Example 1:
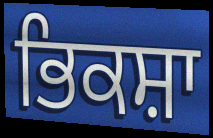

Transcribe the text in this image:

ਭਿਕਸ਼ਾ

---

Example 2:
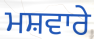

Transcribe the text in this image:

ਮਸ਼ਵਾਰੇ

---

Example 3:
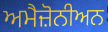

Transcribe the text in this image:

ਅਮੈਜ਼ੋਨੀਅਨ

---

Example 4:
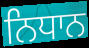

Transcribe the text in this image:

ਨਿਧਾਨ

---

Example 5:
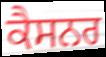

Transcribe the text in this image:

ਕੈਸਨਰ